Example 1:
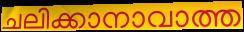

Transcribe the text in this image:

ചലിക്കാനാവാത്ത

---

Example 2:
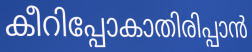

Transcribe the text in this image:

കീറിപ്പോകാതിരിപ്പാൻ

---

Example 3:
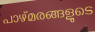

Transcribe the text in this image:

പാഴ്മരങ്ങളുടെ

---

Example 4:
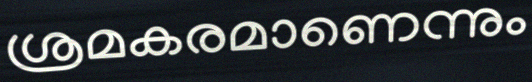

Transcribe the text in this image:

ശ്രമകരമാണെന്നും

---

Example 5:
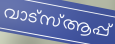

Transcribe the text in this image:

വാട്സ്ആപ്പ്